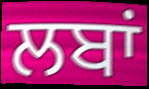
ਲਬਾਂ